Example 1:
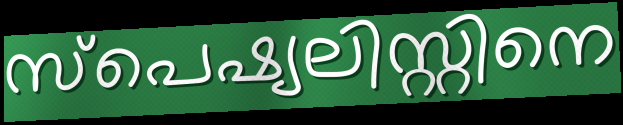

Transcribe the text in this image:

സ്പെഷ്യലിസ്റ്റിനെ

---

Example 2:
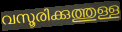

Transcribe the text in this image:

വസൂരിക്കുത്തുള്ള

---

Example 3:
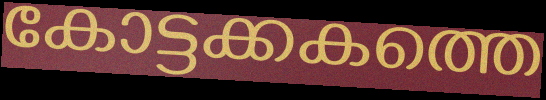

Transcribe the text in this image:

കോട്ടക്കകത്തെ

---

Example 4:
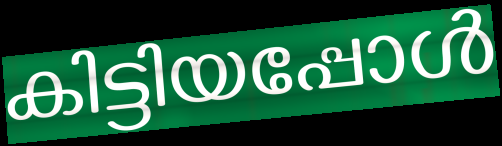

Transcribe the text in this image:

കിട്ടിയപ്പോൾ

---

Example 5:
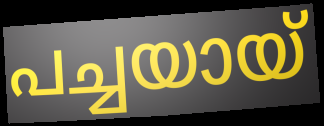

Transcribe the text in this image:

പച്ചയായ്